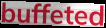
buffeted